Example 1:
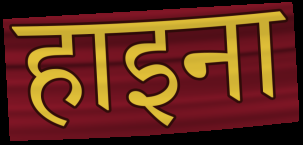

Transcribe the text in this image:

हाइना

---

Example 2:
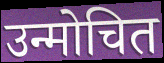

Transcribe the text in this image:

उन्मोचित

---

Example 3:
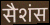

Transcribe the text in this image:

सैशंस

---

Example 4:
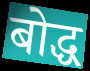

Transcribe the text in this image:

बोद्ध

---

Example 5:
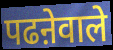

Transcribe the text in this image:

पढऩेवाले